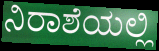
ನಿರಾಶೆಯಲ್ಲಿ